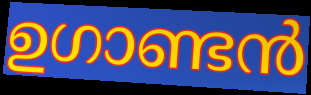
ഉഗാണ്ടൻ